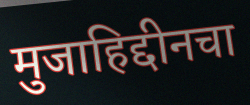
मुजाहिद्दीनचा